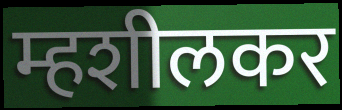
म्हशीलकर